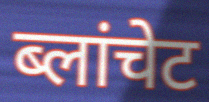
ब्लांचेट